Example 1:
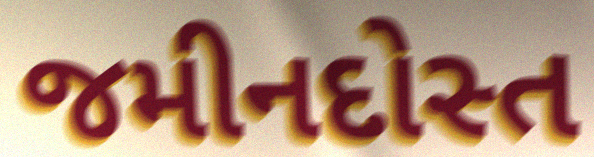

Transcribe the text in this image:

જમીનદોસ્ત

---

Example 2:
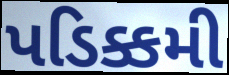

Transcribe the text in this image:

પડિક્કમી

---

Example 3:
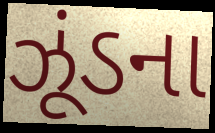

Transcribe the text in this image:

ઝૂંડના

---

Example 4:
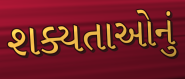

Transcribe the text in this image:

શક્યતાઓનું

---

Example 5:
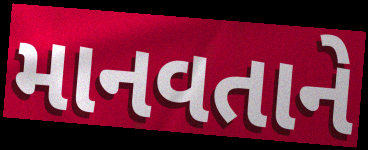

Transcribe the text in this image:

માનવતાને